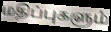
மதிப்புகளும்